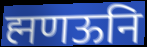
ह्मणऊनि